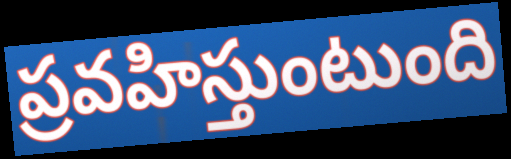
ప్రవహిస్తుంటుంది